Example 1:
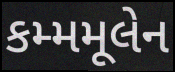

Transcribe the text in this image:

કમ્મમૂલેન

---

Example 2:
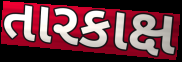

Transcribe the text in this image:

તારકાક્ષ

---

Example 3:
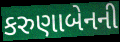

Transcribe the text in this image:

કરુણાબેનની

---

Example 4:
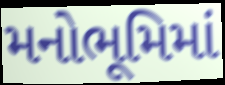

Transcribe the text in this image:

મનોભૂમિમાં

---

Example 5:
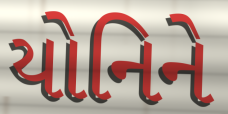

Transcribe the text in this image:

યોનિને